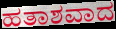
ಹತಾಶವಾದ